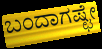
ಬಂದಾಗಷ್ಟೇ